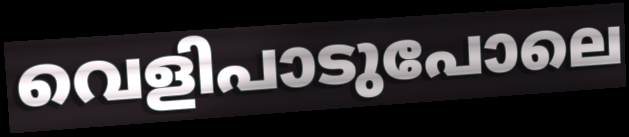
വെളിപാടുപോലെ